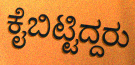
ಕೈಬಿಟ್ಟಿದ್ದರು